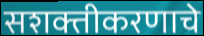
सशक्तीकरणाचे